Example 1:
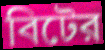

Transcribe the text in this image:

বিটের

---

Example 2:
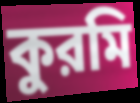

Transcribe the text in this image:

কুরমি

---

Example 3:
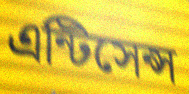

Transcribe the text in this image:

এন্টিসেন্স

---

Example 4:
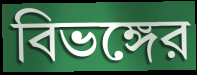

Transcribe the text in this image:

বিভঙ্গের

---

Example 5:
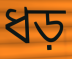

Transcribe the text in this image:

ধড়